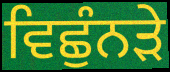
ਵਿਛੁੰਨੜੇ